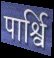
पार्श्वि